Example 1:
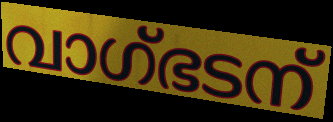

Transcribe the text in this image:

വാഗ്ഭടന്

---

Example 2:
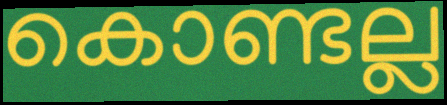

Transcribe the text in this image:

കൊണ്ടല്ല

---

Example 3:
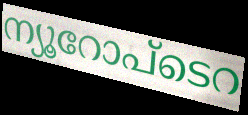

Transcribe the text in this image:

ന്യൂറോപ്ടെറ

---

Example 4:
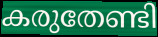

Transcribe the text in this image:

കരുതേണ്ടി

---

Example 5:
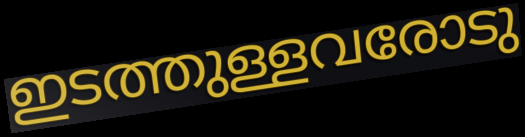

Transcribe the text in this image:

ഇടത്തുള്ളവരോടു